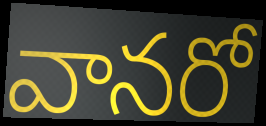
వానరో